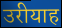
उरीयाह